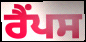
ਰੈਂਪਸ